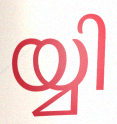
യ്യി